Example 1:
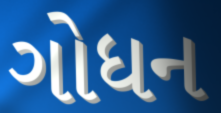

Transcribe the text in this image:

ગોધન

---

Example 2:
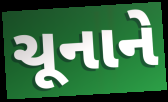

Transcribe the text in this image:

ચૂનાને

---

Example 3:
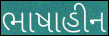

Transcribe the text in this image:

ભાષાહીન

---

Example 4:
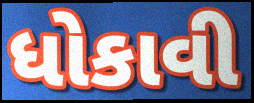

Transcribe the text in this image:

ધોકાવી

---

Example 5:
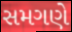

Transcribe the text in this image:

સમગણે